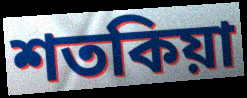
শতকিয়া